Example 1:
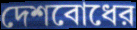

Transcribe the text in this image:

দেশবোধের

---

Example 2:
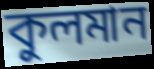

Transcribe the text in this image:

কুলমান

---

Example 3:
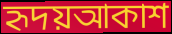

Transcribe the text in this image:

হৃদয়আকাশ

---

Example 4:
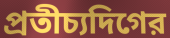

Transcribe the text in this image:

প্রতীচ্যদিগের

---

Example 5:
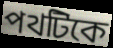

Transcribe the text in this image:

পথটিকে